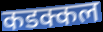
कडक्कल